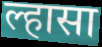
ल्हासा